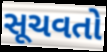
સૂચવતો